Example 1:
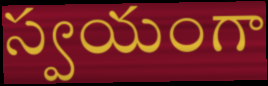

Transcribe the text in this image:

స్వయంగా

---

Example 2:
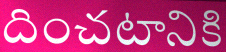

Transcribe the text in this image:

దించటానికి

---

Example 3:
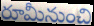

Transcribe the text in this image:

రూమీనుంచి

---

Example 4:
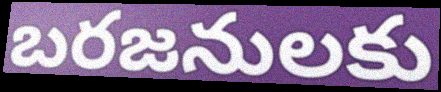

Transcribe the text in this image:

బరజనులకు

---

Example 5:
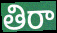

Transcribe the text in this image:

తిరా